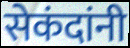
सेकंदांनी